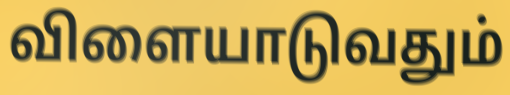
விளையாடுவதும்